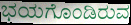
ಭಯಗೊಂಡಿರುವ